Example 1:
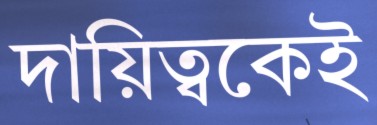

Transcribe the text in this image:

দায়িত্বকেই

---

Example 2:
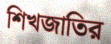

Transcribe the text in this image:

শিখজাতির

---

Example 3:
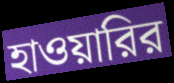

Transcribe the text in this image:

হাওয়ারির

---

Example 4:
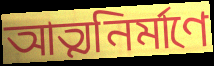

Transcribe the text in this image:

আত্মনির্মাণে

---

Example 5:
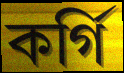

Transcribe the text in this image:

কর্গি